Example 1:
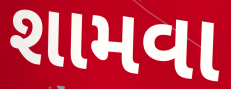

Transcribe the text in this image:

શામવા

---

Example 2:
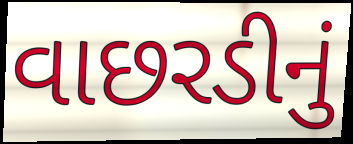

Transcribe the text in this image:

વાછરડીનું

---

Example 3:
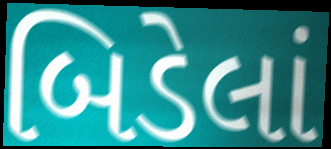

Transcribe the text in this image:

બિડેલાં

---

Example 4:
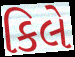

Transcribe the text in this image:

કિલે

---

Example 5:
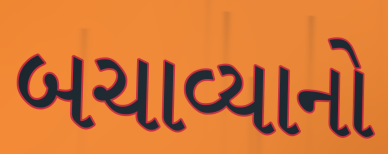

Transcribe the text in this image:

બચાવ્યાનો